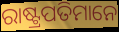
ରାଷ୍ଟ୍ରପତିମାନେ